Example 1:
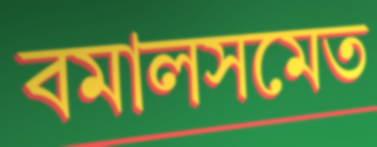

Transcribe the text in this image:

বমালসমেত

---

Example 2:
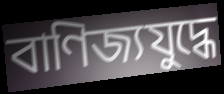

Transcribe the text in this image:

বাণিজ্যযুদ্ধে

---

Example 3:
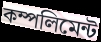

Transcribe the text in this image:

কম্পলিমেন্ট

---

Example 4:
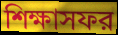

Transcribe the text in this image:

শিক্ষাসফর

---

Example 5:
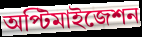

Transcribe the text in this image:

অপ্টিমাইজেশন